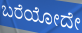
ಬರೆಯೋದೇ